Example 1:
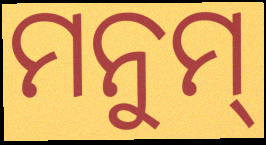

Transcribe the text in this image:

ମନୁମ୍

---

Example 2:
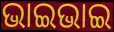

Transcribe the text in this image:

ଭାଇଭାଇ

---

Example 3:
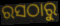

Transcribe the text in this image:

ରସଠାରୁ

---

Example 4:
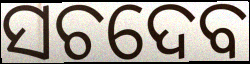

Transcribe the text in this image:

ସଚଦେବ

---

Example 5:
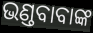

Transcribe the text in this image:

ଭଣ୍ଡବାବାଙ୍କ